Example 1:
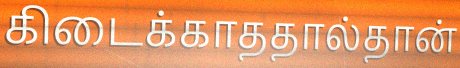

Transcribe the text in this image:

கிடைக்காததால்தான்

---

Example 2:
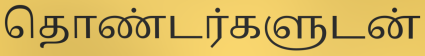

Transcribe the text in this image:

தொண்டர்களுடன்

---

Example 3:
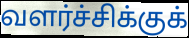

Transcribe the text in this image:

வளர்ச்சிக்குக்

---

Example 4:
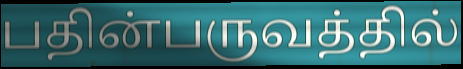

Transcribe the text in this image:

பதின்பருவத்தில்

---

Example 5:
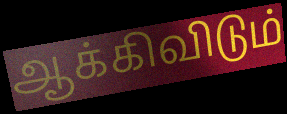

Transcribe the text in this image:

ஆக்கிவிடும்